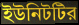
ইউনিটটির